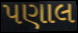
પણાલ